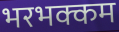
भरभक्कम